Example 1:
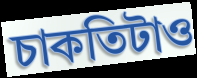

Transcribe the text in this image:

চাকতিটাও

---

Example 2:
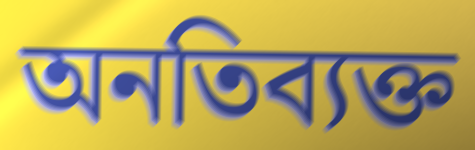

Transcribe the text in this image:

অনতিব্যক্ত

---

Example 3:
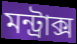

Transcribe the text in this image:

মন্ট্রাক্স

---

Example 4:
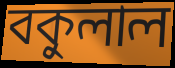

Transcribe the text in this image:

বকুলাল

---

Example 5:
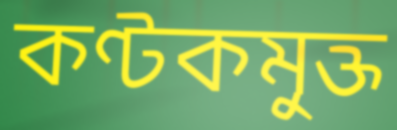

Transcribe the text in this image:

কণ্টকমুক্ত